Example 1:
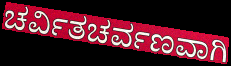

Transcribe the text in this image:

ಚರ್ವಿತಚರ್ವಣವಾಗಿ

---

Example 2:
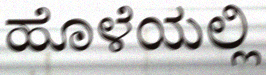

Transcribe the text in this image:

ಹೊಳೆಯಲ್ಲಿ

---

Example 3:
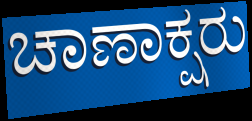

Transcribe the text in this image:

ಚಾಣಾಕ್ಷರು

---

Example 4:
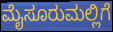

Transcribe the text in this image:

ಮೈಸೂರುಮಲ್ಲಿಗೆ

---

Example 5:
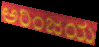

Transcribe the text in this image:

ಅರಿಂಜಯ